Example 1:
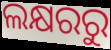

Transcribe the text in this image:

ଲକ୍ଷରରୁ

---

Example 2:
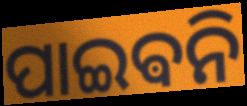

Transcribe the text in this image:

ପାଇଵନି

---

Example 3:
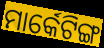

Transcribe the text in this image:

ମାର୍କେଟିଙ୍ଗ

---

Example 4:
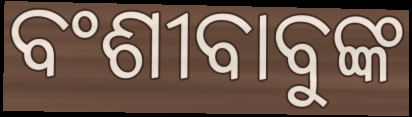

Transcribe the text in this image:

ବଂଶୀବାବୁଙ୍କ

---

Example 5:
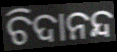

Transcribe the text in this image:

ଚିଦାନନ୍ଦ